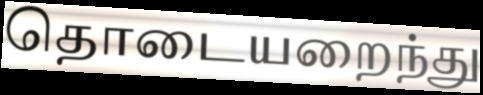
தொடையறைந்து